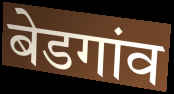
बेडगांव